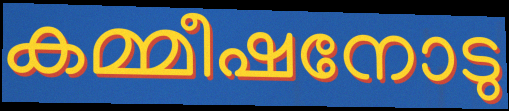
കമ്മീഷനോടു